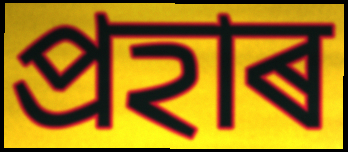
প্ৰহাৰ